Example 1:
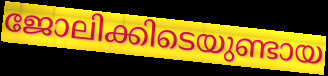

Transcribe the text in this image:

ജോലിക്കിടെയുണ്ടായ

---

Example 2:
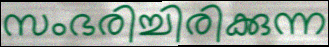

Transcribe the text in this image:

സംഭരിച്ചിരിക്കുന്ന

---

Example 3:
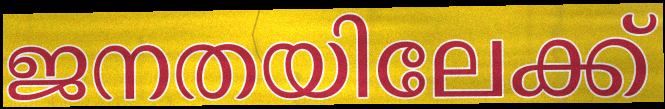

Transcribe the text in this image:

ജനതയിലേക്ക്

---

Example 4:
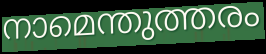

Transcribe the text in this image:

നാമെന്തുത്തരം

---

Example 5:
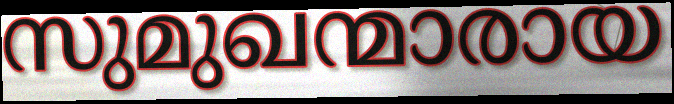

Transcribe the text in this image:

സുമുഖന്മാരായ